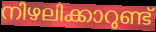
നിഴലിക്കാറുണ്ട്